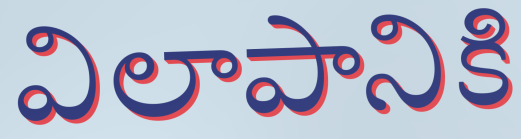
విలాపానికి